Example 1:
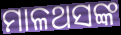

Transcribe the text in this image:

ମାଳଥସଙ୍କ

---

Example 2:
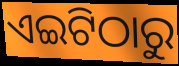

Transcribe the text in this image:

ଏଇଟିଠାରୁ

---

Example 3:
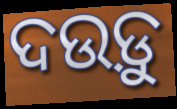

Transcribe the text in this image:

ଦଉଡ଼ୁ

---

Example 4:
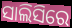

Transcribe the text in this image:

ସାଲିସିରେ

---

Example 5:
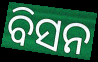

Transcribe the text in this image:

ବିସନ